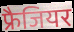
फ्रैजियर